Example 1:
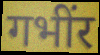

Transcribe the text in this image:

गभींर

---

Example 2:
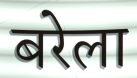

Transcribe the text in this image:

बरेला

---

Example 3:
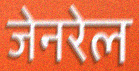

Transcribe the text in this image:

जेनरेल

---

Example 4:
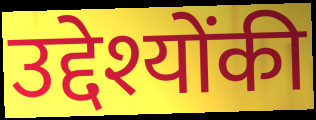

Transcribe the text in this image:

उद्देश्योंकी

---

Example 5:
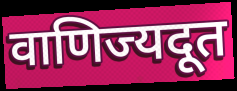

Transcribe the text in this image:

वाणिज्यदूत